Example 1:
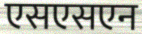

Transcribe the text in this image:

एसएसएन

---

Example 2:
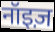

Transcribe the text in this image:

नॉइज़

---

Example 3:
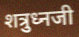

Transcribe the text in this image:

शत्रुध्नजी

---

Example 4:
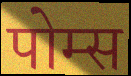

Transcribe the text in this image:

पोम्स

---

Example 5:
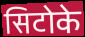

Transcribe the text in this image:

सिटोके